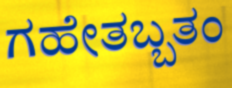
ಗಹೇತಬ್ಬತಂ